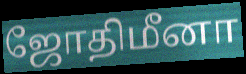
ஜோதிமீனா